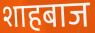
शाहबाज